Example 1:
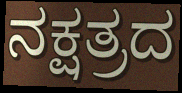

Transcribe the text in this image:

ನಕ್ಷತ್ರದ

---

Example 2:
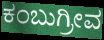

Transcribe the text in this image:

ಕಂಬುಗ್ರೀವ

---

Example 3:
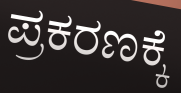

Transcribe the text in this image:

ಪ್ರಕರಣಕ್ಕೆ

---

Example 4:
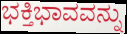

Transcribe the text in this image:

ಭಕ್ತಿಭಾವವನ್ನು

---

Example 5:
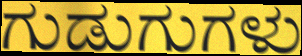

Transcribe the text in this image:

ಗುಡುಗುಗಳು